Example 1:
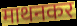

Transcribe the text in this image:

माथनकर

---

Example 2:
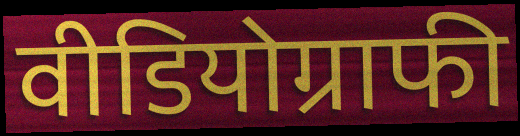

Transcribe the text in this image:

वीडियोग्राफी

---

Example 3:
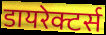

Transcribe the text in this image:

डायरेक्टर्स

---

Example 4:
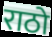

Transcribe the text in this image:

राठो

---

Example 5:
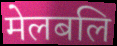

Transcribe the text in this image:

मेलबलि